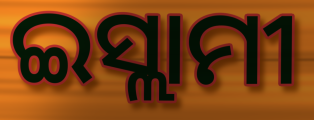
ଇସ୍ଲାମୀ